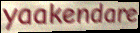
yaakendare